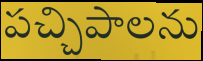
పచ్చిపాలను